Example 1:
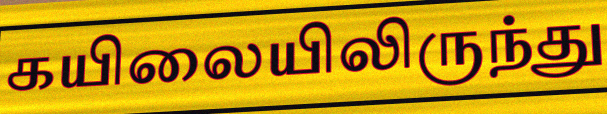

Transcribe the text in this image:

கயிலையிலிருந்து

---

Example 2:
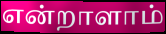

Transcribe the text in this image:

என்றாளாம்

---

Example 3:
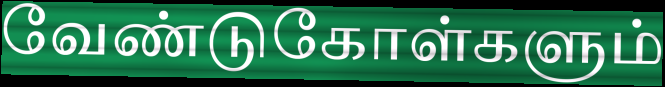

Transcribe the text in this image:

வேண்டுகோள்களும்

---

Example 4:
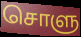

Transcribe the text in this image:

சொளு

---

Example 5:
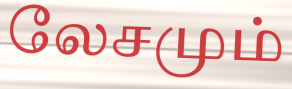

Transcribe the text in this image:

லேசமும்